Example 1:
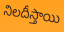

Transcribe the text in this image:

నిలదీస్తాయి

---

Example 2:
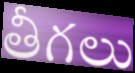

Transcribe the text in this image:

తీగలు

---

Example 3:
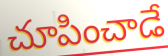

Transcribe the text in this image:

చూపించాడే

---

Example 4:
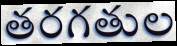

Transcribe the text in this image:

తరగతుల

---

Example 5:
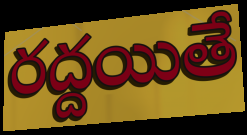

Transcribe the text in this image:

రద్దయితే